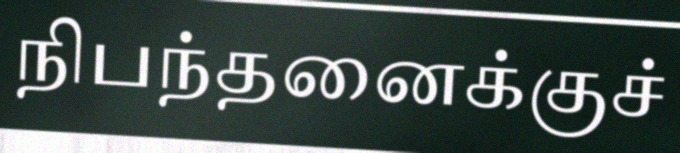
நிபந்தனைக்குச்